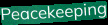
Peacekeeping